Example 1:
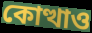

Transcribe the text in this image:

কোত্থাও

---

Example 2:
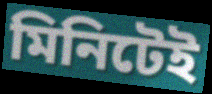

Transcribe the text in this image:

মিনিটেই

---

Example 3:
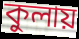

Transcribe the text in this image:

কুলায়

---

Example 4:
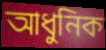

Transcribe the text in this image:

আধুনিক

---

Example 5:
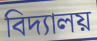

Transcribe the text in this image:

বিদ্যালয়